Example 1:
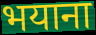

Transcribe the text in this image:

भयाना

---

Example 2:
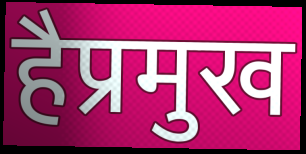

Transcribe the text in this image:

हैप्रमुख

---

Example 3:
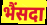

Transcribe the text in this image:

भैंसदा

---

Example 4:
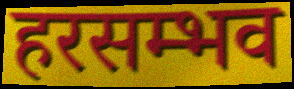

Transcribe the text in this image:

हरसम्भव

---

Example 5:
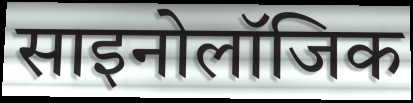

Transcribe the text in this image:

साइनोलॉजिक